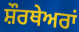
ਸ਼ੌਰਥੇਅਰਾਂ